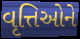
વૃત્તિઓને